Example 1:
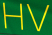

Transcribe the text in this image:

HV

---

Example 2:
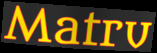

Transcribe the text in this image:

Matru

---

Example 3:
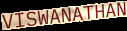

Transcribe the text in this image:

VISWANATHAN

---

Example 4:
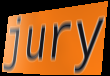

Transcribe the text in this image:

jury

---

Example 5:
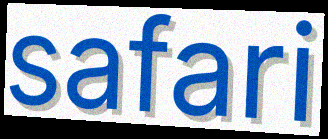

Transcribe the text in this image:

safari